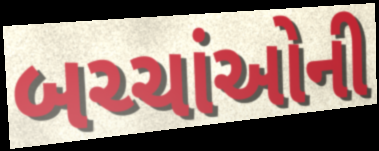
બચ્ચાંઓની